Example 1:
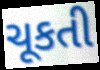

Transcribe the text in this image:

ચૂકતી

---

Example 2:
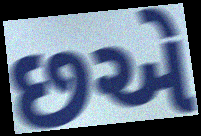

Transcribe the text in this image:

છએ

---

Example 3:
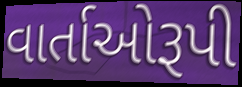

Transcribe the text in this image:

વાર્તાઓરૂપી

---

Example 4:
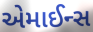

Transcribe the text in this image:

એમાઈન્સ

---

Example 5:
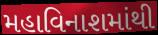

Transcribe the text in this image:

મહાવિનાશમાંથી